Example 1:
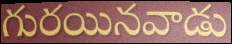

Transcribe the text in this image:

గురయినవాడు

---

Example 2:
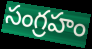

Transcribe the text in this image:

సంగ్రహం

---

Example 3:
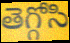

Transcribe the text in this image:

తెగ్గోసి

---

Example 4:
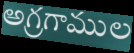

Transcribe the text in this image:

అగ్రగాముల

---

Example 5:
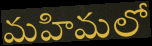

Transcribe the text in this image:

మహిమలో